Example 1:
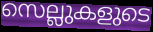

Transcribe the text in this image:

സെല്ലുകളുടെ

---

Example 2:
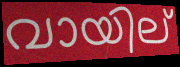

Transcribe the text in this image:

വായില്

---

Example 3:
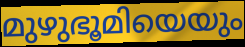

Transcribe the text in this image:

മുഴുഭൂമിയെയും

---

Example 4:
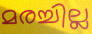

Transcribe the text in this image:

മരച്ചില്ല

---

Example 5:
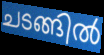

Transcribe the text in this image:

ചടങ്ങിൽ